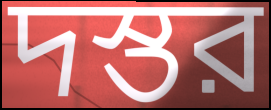
দস্তর